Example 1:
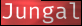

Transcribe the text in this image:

Jungal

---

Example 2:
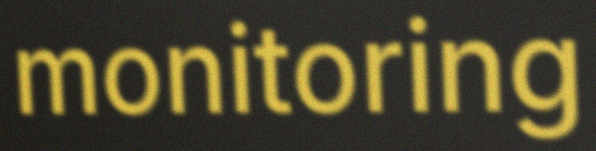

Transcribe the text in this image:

monitoring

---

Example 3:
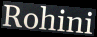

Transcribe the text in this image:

Rohini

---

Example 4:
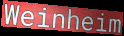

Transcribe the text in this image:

Weinheim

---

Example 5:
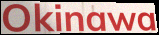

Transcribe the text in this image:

Okinawa